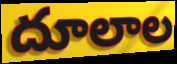
దూలాల